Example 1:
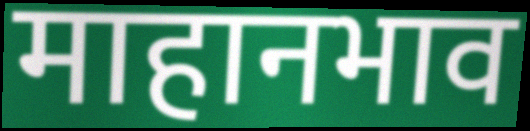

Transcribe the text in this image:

माहानभाव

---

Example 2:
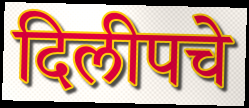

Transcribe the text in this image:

दिलीपचे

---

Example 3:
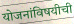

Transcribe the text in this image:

योजनांविषयीची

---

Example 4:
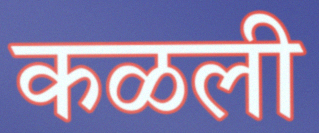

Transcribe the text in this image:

कळली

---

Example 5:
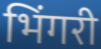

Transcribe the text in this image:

भिंगरी